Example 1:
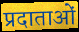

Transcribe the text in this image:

प्रदाताओं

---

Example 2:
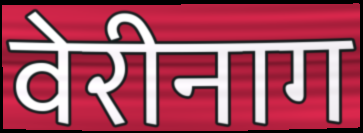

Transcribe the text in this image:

वेरीनाग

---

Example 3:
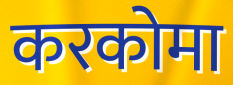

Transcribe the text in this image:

करकोमा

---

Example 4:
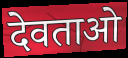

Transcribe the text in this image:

देवताओ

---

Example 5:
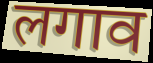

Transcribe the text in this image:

लगाव